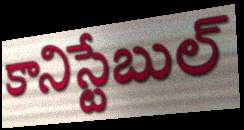
కానిస్టేబుల్